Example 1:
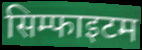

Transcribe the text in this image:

सिम्फाइटम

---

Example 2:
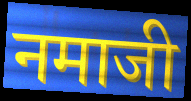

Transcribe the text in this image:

नमाजी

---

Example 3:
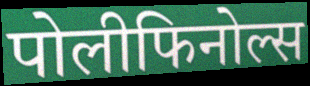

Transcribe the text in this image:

पोलीफिनोल्स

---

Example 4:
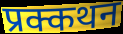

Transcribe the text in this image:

प्रक्कथन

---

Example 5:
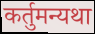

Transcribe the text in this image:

कर्तुमन्यथा